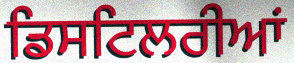
ਡਿਸਟਿਲਰੀਆਂ